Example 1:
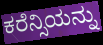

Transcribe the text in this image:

ಕರೆನ್ಸಿಯನ್ನು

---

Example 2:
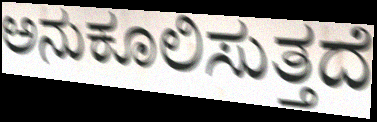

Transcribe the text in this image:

ಅನುಕೂಲಿಸುತ್ತದೆ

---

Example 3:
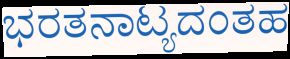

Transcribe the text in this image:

ಭರತನಾಟ್ಯದಂತಹ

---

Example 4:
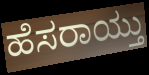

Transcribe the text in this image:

ಹೆಸರಾಯ್ತು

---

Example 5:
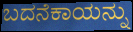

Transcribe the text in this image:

ಬದನೆಕಾಯನ್ನು